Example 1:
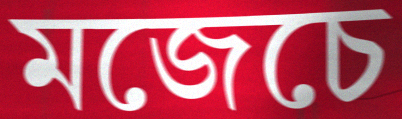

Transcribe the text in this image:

মজেচে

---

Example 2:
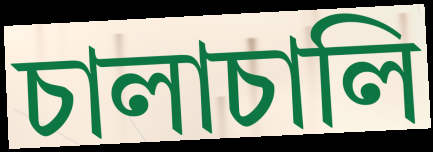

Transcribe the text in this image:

চালাচালি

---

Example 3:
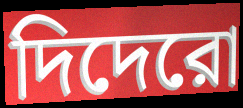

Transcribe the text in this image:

দিদেরো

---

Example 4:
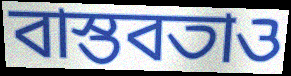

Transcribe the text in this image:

বাস্তবতাও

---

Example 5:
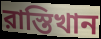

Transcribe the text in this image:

রাস্তিখান